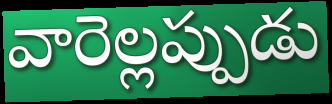
వారెల్లప్పుడు